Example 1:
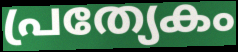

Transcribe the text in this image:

പ്രത്യേകം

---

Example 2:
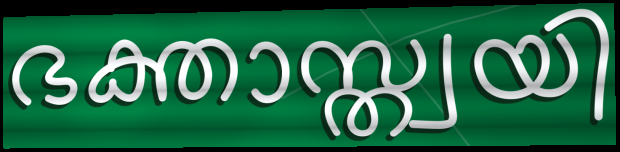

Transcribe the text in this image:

ഭക്താസ്ത്വയി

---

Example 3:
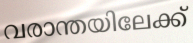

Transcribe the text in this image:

വരാന്തയിലേക്ക്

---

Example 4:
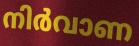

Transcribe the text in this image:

നിർവാണ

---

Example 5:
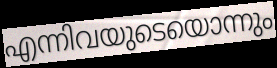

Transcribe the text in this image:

എന്നിവയുടെയൊന്നും